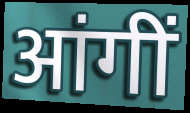
आंगीं